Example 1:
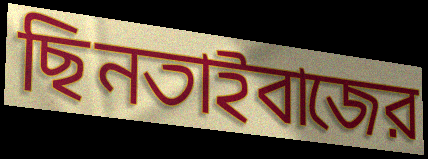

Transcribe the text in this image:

ছিনতাইবাজের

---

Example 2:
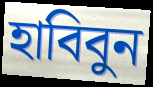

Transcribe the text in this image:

হাবিবুন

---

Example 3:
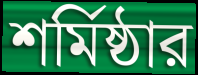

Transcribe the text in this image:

শর্মিষ্ঠার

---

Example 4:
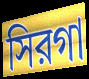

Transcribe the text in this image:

সিরগা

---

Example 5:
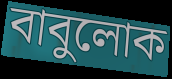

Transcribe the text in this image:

বাবুলোক